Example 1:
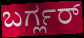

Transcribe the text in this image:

ಬರ್ಗ್ಲರ್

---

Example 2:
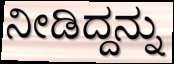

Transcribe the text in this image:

ನೀಡಿದ್ದನ್ನು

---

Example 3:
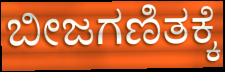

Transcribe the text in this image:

ಬೀಜಗಣಿತಕ್ಕೆ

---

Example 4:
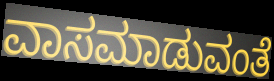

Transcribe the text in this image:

ವಾಸಮಾಡುವಂತೆ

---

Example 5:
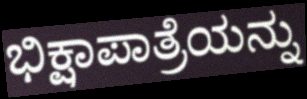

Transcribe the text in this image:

ಭಿಕ್ಷಾಪಾತ್ರೆಯನ್ನು